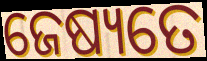
ଜେଷ୍ୟତେ